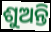
ଶୁଅନ୍ତି